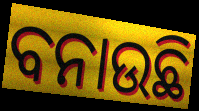
ବନାଉଛି